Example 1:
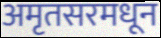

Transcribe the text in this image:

अमृतसरमधून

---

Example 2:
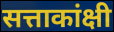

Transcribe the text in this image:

सत्ताकांक्षी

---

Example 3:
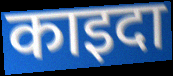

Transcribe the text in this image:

काइदा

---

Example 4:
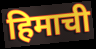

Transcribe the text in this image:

हिमाची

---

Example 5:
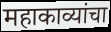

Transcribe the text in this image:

महाकाव्यांचा